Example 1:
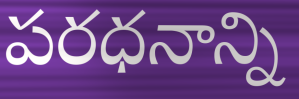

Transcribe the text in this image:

పరధనాన్ని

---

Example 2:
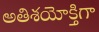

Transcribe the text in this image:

అతిశయోక్తిగా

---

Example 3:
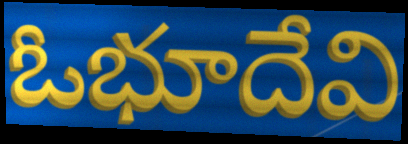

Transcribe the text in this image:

ఓభూదేవి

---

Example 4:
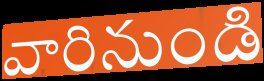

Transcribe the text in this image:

వారినుండి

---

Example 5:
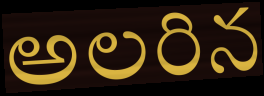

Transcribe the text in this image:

అలరిన